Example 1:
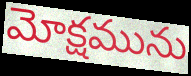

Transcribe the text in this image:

మోక్షమును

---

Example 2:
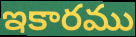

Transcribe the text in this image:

ఇకారము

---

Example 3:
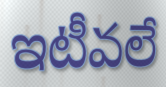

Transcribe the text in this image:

ఇటీవలే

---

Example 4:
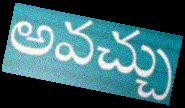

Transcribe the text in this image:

అవచ్చు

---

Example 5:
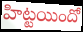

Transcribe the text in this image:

హిట్టయిందో